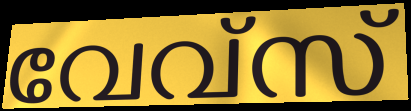
വേവ്സ്